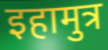
इहामुत्र